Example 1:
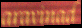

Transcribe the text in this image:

aravinad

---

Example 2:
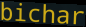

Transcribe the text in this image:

bichar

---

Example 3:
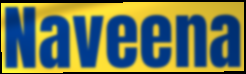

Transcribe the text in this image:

Naveena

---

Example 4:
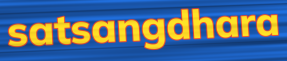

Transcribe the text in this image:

satsangdhara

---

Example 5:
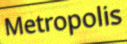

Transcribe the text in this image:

Metropolis